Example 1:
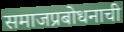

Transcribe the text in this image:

समाजप्रबोधनाची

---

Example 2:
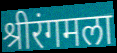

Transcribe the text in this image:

श्रीरंगमला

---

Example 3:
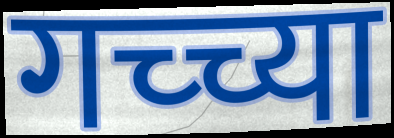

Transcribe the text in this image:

गच्च्या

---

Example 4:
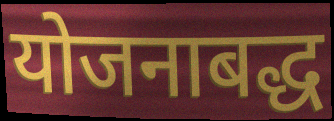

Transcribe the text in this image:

योजनाबद्ध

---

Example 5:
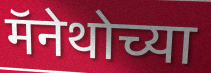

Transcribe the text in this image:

मॅनेथोच्या